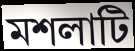
মশলাটি